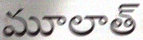
మూలాత్